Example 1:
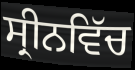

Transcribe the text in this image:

ਸ੍ਰੀਨਵਿੱਚ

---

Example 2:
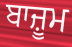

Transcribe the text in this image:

ਬਾਜ਼ੂਮ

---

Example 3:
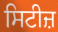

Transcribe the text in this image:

ਸਿਟੀਜ਼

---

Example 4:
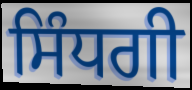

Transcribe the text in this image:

ਸਿੰਧਗੀ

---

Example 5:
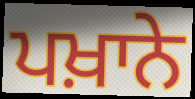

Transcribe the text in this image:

ਪਖ਼ਾਨੇ